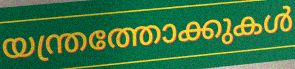
യന്ത്രത്തോക്കുകൾ